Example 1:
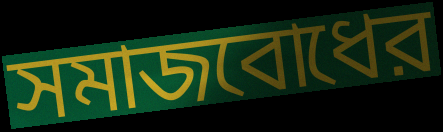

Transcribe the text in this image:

সমাজবোধের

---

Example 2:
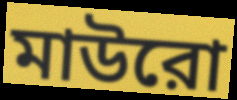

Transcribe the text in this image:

মাউরো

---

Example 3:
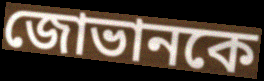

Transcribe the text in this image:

জোভানকে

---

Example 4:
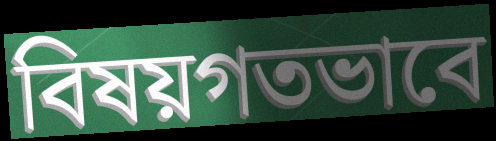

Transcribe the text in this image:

বিষয়গতভাবে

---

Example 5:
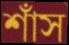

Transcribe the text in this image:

শাঁস